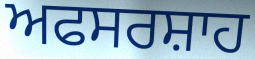
ਅਫਸਰਸ਼ਾਹ